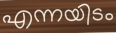
എന്നയിടം